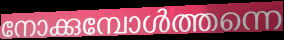
നോക്കുമ്പോൾത്തന്നെ